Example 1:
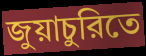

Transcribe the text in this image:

জুয়াচুরিতে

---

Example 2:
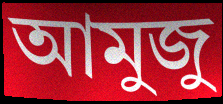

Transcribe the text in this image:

আমুজু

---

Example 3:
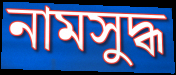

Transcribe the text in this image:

নামসুদ্ধ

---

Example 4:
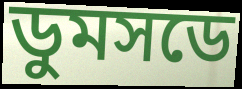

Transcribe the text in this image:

ডুমসডে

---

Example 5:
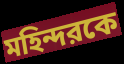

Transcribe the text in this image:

মহিন্দরকে